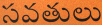
సవతులు